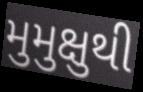
મુમુક્ષુથી